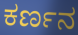
ಕರ್ಣನ